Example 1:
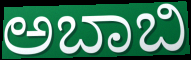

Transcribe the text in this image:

ಅಬಾಬಿ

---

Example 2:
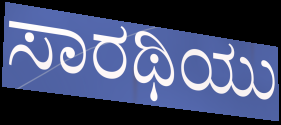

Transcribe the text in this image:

ಸಾರಥಿಯು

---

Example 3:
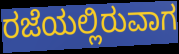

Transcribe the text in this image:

ರಜೆಯಲ್ಲಿರುವಾಗ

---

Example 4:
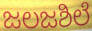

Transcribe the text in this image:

ಜಲಜಶಿಲೆ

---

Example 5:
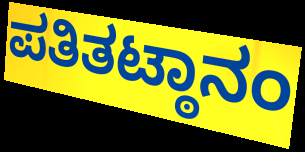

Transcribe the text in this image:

ಪತಿತಟ್ಠಾನಂ